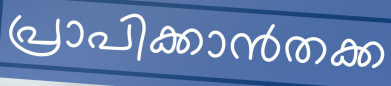
പ്രാപിക്കാൻതക്ക